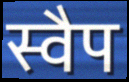
स्वैप